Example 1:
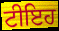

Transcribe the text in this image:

ਟੀਇਹ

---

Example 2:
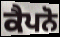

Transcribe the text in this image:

ਕੈਪਨੋ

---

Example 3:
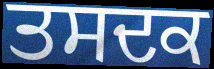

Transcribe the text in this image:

ਤਸਦਕ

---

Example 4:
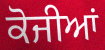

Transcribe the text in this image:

ਕੋਜੀਆਂ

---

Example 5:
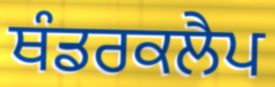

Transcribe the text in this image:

ਥੰਡਰਕਲੈਪ